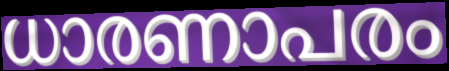
ധാരണാപരം